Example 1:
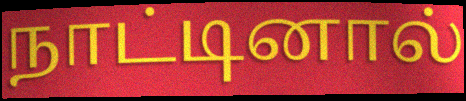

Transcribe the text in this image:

நாட்டினால்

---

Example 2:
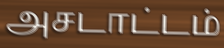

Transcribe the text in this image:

அசடாட்டம்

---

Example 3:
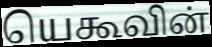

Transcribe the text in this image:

யெகூவின்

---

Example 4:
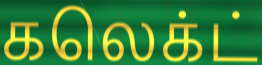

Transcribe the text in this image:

கலெக்ட்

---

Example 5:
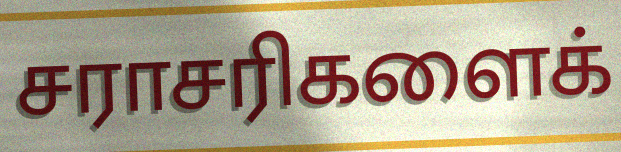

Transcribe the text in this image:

சராசரிகளைக்